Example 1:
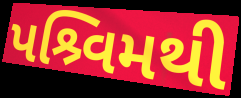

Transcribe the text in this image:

પશ્ર્વિમથી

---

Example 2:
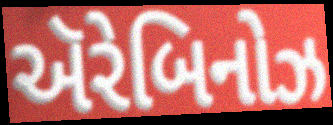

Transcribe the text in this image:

ઍરેબિનોઝ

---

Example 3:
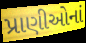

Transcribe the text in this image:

પ્રાણીઓનાં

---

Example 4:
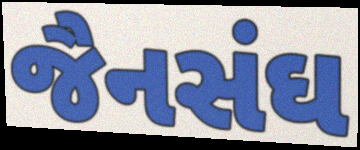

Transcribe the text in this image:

જૈનસંઘ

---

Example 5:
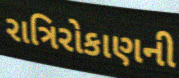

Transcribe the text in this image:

રાત્રિરોકાણની